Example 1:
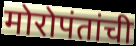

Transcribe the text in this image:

मोरोपंतांची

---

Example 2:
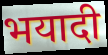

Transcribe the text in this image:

भयादी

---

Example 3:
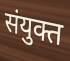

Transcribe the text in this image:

संयुक्त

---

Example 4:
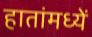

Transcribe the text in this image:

हातांमध्यें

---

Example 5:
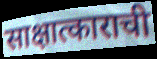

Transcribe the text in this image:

साक्षात्काराची